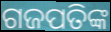
ଗଜପତିଙ୍କ